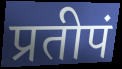
प्रतीपं